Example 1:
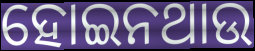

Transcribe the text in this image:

ହୋଇନଥାଉ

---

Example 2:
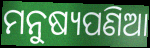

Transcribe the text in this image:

ମନୁଷ୍ୟପଣିଆ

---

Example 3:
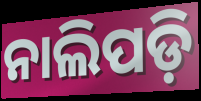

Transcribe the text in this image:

ନାଲିପଡ଼ି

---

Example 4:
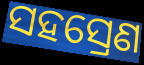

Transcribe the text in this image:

ସହସ୍ରେଣ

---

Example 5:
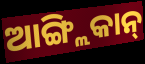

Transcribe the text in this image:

ଆଙ୍ଗ୍ଲିକାନ୍